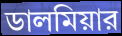
ডালমিয়ার